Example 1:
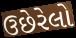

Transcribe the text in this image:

ઉછેરેલો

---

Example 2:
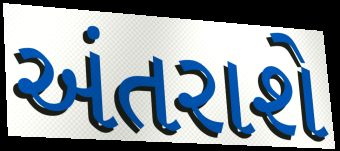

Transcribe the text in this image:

અંતરાશે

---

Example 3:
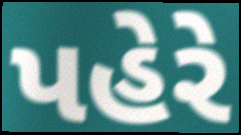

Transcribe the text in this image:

પહેરે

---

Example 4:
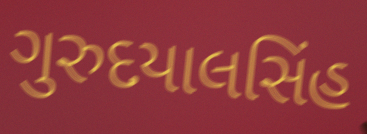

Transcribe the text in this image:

ગુરુદયાલસિંહ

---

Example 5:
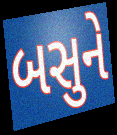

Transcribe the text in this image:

બસુને